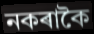
নকৰাকৈ